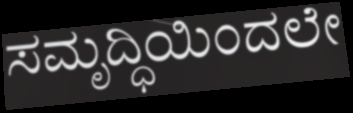
ಸಮೃದ್ಧಿಯಿಂದಲೇ